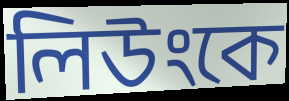
লিউংকে